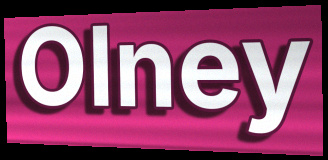
Olney